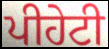
ਪੀਹੇਟੀ